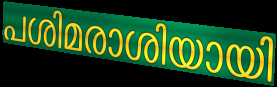
പശിമരാശിയായി